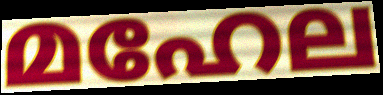
മഹേല